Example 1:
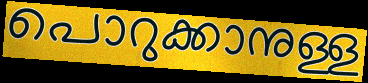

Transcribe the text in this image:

പൊറുക്കാനുള്ള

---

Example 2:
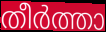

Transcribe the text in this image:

തീർത്താ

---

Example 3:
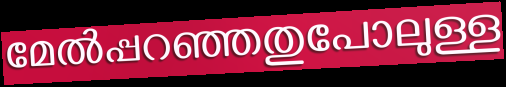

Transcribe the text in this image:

മേൽപ്പറഞ്ഞതുപോലുള്ള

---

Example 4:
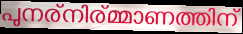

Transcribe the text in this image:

പുനര്നിര്മ്മാണത്തിന്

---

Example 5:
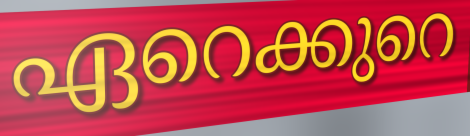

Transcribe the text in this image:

ഏറെക്കുറെ